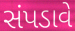
સંપડાવે